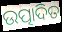
ଉତ୍ପାଦିତ